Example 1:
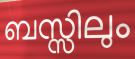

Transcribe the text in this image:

ബസ്സിലും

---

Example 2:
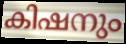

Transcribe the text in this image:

കിഷനും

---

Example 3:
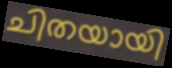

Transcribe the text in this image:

ചിതയായി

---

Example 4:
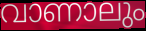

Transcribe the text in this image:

വാണാലും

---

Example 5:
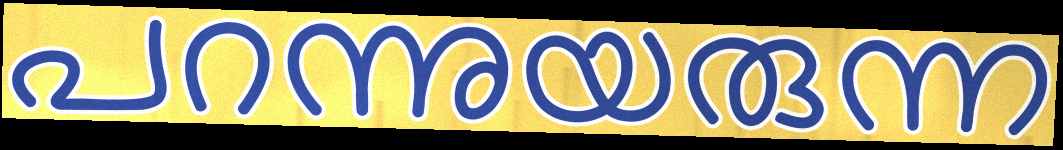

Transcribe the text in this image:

പറന്നുയരുന്ന